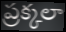
ప్రక్కలా